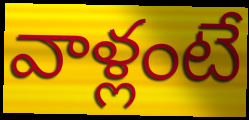
వాళ్లంటే